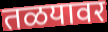
तळयावर